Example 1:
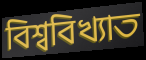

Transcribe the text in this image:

বিশ্ববিখ্যাত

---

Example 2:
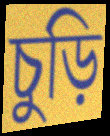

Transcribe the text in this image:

চুড়ি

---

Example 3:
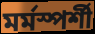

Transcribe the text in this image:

মৰ্মস্পৰ্শী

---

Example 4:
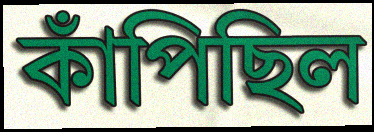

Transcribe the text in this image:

কাঁপিছিল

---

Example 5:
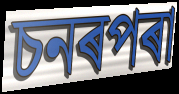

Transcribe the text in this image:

চনৰপৰা